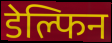
डेल्फिन